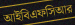
আইবিএফসিআর